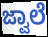
ಜ್ವಾಲೆ